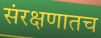
संरक्षणातच